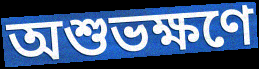
অশুভক্ষণে